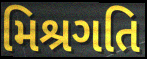
મિશ્રગતિ